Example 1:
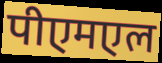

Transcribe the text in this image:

पीएमएल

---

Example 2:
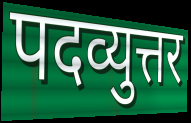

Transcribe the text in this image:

पदव्युत्तर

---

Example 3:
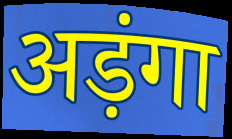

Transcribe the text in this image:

अड़ंगा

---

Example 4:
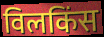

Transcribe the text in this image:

विलकिंस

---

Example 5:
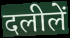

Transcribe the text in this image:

दलीलें